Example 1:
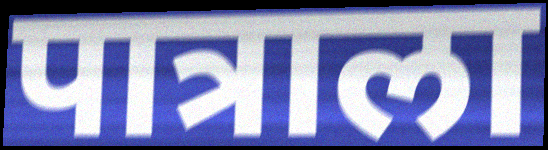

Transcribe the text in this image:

पात्राला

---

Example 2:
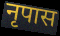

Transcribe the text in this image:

नृपास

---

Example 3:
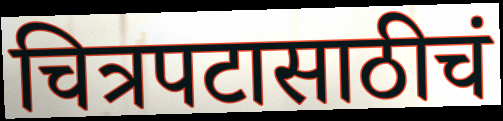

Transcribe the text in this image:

चित्रपटासाठीचं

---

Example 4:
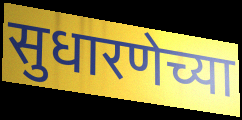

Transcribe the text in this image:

सुधारणेच्या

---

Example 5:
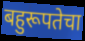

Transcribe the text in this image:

बहुरूपतेचा